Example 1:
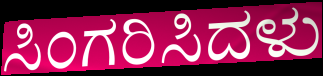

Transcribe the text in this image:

ಸಿಂಗರಿಸಿದಳು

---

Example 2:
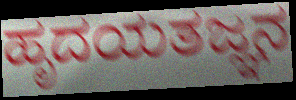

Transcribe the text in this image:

ಹೃದಯತಜ್ಞನ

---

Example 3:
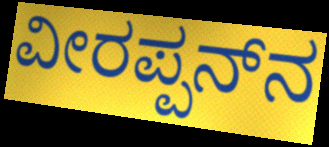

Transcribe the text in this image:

ವೀರಪ್ಪನ್‍ನ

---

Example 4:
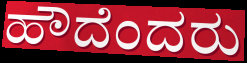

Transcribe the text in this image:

ಹೌದೆಂದರು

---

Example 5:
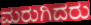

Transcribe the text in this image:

ಮರುಗಿದರು